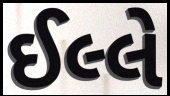
ઈલ્લે